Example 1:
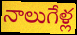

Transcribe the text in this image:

నాలుగేళ్ల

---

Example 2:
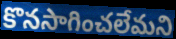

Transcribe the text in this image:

కొనసాగించలేమని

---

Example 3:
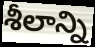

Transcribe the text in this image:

శీలాన్ని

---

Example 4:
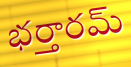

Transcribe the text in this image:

భర్తారమ్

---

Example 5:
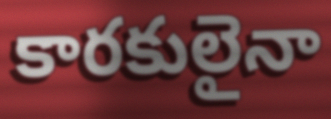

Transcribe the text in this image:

కారకులైనా